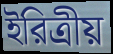
ইরিত্রীয়